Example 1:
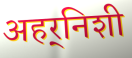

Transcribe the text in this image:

अहर्निशी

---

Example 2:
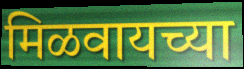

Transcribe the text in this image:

मिळवायच्या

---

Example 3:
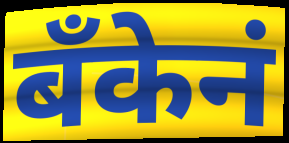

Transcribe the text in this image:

बॅंकेनं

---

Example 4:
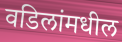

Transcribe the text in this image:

वडिलांमधील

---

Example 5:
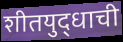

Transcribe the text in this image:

शीतयुद्धाची